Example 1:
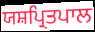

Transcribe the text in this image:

ਯਸ਼ਪ੍ਰਿਤਪਾਲ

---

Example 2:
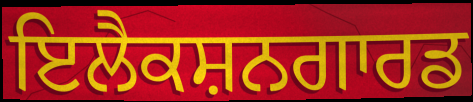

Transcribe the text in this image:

ਇਲੈਕਸ਼ਨਗਾਰਡ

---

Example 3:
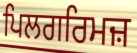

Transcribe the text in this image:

ਪਿਲਗਰਿਮਜ਼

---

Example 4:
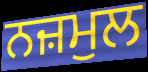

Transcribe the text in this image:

ਨਜ਼ਮੁਲ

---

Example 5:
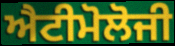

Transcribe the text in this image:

ਐਟੀਮੋਲੋਜੀ